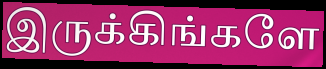
இருக்கிங்களே